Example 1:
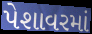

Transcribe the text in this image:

પેશાવરમાં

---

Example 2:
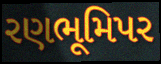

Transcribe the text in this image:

રણભૂમિપર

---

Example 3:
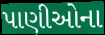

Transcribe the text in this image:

પાણીઓના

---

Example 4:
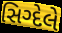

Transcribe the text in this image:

સિગ્દેલે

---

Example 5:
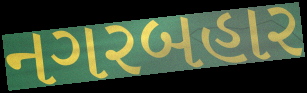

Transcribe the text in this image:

નગરબહાર